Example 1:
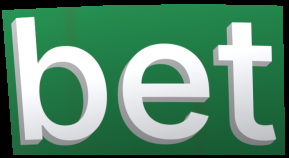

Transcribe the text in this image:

bet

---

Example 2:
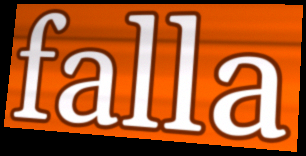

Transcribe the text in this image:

falla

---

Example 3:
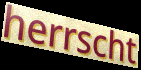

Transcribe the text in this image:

herrscht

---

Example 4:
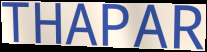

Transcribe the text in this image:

THAPAR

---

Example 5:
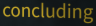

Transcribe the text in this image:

concluding